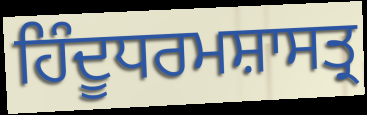
ਹਿੰਦੂਧਰਮਸ਼ਾਸਤ੍ਰ